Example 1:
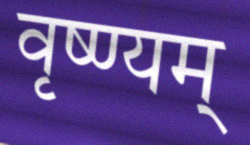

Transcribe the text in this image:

वृष्ण्यम्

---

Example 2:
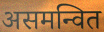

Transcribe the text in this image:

असमन्वित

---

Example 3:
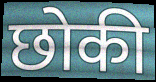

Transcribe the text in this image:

छोकी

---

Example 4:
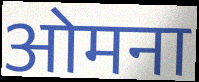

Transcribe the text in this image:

ओमना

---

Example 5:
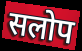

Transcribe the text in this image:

सलोप